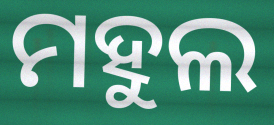
ମହୁଲ